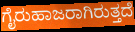
ಗೈರುಹಾಜರಾಗಿರುತ್ತದೆ